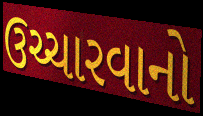
ઉચ્ચારવાનો